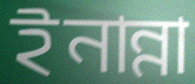
ইনান্না